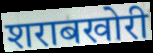
शराबखोरी